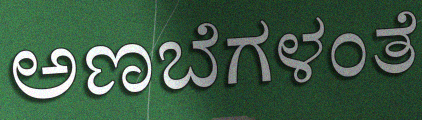
ಅಣಬೆಗಳಂತೆ